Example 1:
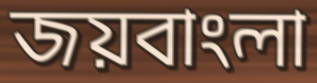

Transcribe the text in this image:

জয়বাংলা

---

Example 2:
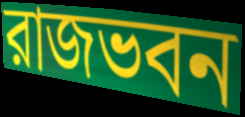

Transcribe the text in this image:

রাজভবন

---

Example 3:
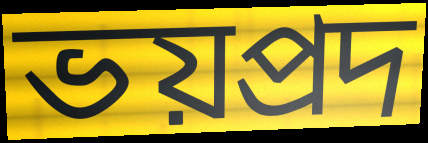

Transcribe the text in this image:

ভয়প্রদ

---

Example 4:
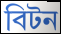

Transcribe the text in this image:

বিটন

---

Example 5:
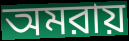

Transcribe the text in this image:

অমরায়